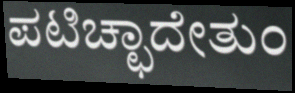
ಪಟಿಚ್ಛಾದೇತುಂ